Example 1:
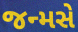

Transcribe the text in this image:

જન્મસે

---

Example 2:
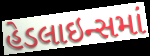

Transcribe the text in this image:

હેડલાઇન્સમાં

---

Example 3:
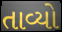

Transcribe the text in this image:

તાવ્યો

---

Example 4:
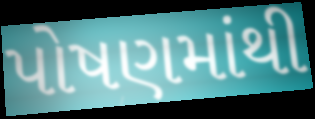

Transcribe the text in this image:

પોષણમાંથી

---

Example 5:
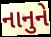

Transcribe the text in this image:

નાનુને